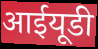
आईयूडी